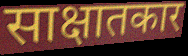
साक्षातकार